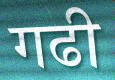
गढी